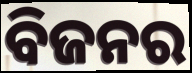
ବିଜନର